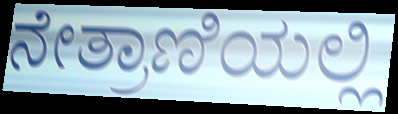
ನೇತ್ರಾಣಿಯಲ್ಲಿ